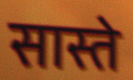
सास्ते